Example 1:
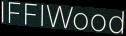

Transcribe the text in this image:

IFFIWood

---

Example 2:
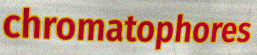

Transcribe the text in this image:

chromatophores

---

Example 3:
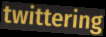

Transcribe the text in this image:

twittering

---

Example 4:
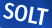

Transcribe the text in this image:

SOLT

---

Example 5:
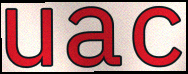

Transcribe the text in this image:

uac